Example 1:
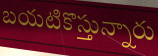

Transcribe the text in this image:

బయటికొస్తున్నారు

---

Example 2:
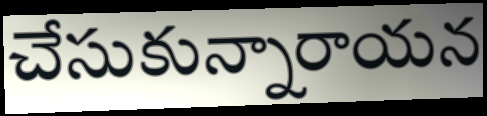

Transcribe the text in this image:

చేసుకున్నారాయన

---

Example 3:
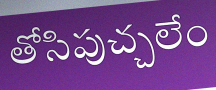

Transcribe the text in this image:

తోసిపుచ్చలేం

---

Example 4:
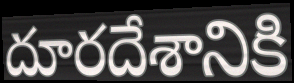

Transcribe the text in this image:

దూరదేశానికి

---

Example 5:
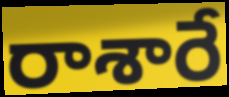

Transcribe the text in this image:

రాశారే